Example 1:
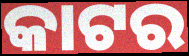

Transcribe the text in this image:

କାଟର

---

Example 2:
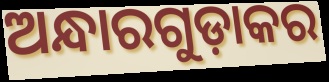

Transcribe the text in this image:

ଅନ୍ଧାରଗୁଡ଼ାକର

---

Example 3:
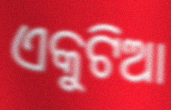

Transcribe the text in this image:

ଏକୁଟିଆ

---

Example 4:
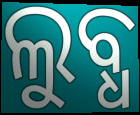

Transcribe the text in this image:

ଲୁବ୍ଧ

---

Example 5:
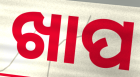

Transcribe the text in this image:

ଖାପ